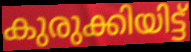
കുരുക്കിയിട്ട്